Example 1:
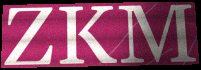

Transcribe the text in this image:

ZKM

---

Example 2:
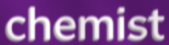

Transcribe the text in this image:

chemist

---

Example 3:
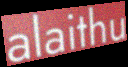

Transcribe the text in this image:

alaithu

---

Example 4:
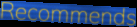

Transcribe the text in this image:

Recommends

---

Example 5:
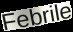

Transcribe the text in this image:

Febrile